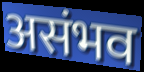
असंभव